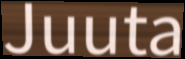
Juuta